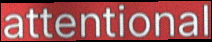
attentional